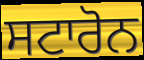
ਸਟਾਰੋਨ